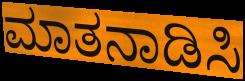
ಮಾತನಾಡಿಸಿ